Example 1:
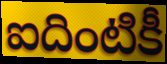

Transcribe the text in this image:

ఐదింటికీ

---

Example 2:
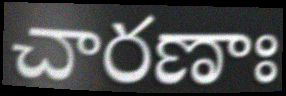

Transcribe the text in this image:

చారణాః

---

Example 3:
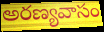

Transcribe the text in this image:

అరణ్యవాసం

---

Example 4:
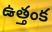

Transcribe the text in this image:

ఉత్తంక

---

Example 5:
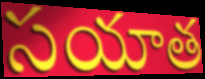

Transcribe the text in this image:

సయాత